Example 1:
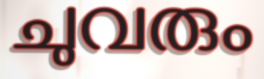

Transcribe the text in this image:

ചുവരും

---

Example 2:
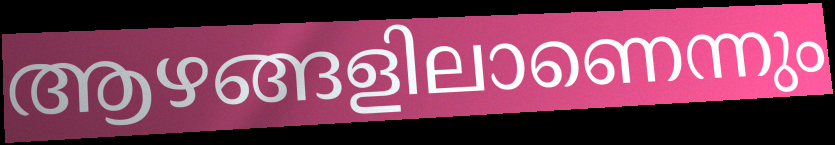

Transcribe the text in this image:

ആഴങ്ങളിലാണെന്നും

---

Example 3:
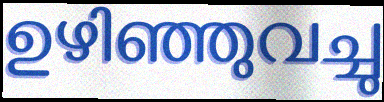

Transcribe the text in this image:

ഉഴിഞ്ഞുവച്ചു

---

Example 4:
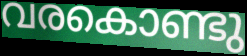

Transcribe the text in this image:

വരകൊണ്ടു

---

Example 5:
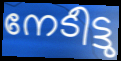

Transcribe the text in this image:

നേടീട്ടു